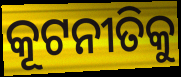
କୂଟନୀତିକୁ